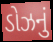
ડોઝનું